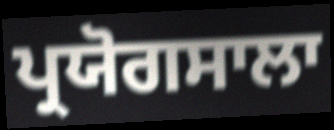
ਪ੍ਰਯੋਗਸਾਲਾ